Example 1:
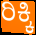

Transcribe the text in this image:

ರಿಕ್ಕಿ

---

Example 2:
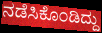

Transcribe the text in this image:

ನಡೆಸಿಕೊಂಡಿದ್ದು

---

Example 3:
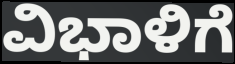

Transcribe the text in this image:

ವಿಭಾಳಿಗೆ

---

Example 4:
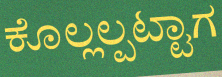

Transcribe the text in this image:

ಕೊಲ್ಲಲ್ಪಟ್ಟಾಗ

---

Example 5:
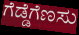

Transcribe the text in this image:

ಗೆಡ್ಡೆಗೆಣಸು